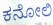
ಕನೋಲಿ